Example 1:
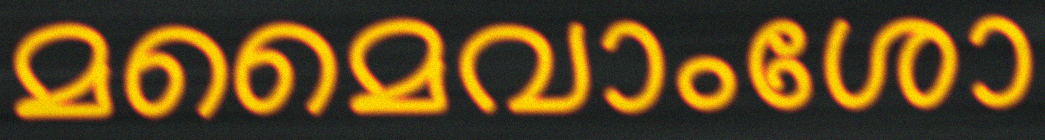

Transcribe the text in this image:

മമൈവാംശോ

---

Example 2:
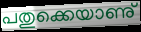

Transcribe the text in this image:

പതുക്കെയാണു്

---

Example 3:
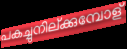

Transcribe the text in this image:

പകച്ചുനില്ക്കുമ്പോള്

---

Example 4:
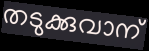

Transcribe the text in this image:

തടുക്കുവാന്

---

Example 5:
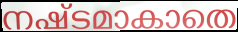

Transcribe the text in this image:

നഷ്‌ടമാകാതെ